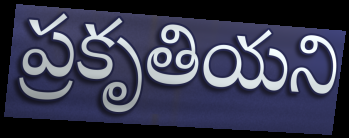
ప్రకృతియని